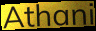
Athani